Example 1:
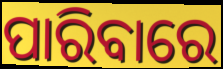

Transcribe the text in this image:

ପାରିବାରେ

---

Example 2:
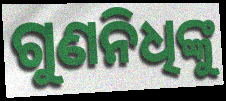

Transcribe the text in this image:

ଗୁଣନିଧିଙ୍କୁ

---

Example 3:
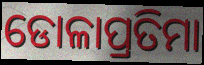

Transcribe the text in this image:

ଡୋଳାପ୍ରତିମା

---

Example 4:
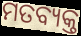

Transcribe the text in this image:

ମତବ୍ୟକ୍ତ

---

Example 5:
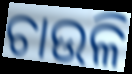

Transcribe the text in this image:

ଚାଉଳି